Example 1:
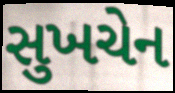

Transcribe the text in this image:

સુખચેન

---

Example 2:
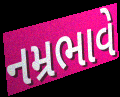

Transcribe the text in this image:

નમ્રભાવે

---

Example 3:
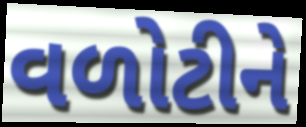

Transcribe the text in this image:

વળોટીને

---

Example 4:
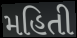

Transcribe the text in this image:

મહિતી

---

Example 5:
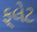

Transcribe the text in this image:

ફ્‌લેટ